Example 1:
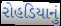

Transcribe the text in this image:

રોહડિયાનું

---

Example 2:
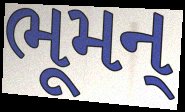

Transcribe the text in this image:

ભૂમન્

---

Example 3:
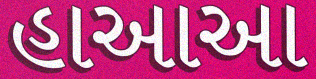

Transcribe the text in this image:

હાઆઆ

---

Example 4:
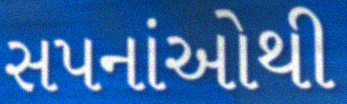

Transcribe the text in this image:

સપનાંઓથી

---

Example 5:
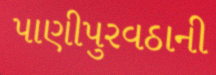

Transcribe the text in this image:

પાણીપુરવઠાની